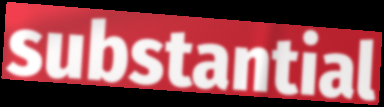
substantial